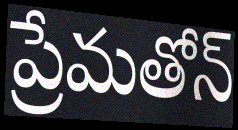
ప్రేమతోన్